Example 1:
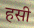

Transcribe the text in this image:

हसी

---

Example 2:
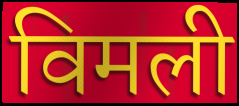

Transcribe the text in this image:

विमली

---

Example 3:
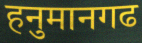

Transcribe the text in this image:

हनुमानगढ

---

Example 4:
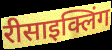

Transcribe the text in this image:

रीसाइक्लिंग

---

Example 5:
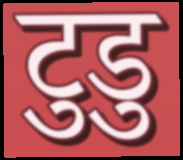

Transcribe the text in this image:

टुडु